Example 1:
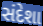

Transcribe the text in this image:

સંદેશા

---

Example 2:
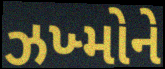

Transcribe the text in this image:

ઝખ્મોને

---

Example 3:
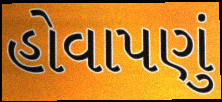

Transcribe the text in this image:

હોવાપણું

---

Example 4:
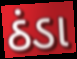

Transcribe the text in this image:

ઠંડા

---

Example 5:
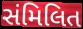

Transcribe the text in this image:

સંમિલિત